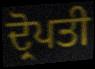
ਦ੍ਰੋਪਤੀ